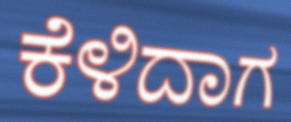
ಕೆಳಿದಾಗ